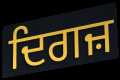
ਦਿਗਜ਼